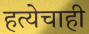
हत्येचाही